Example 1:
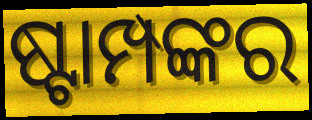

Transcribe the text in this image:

ଷ୍ଟାମ୍ପଙ୍କର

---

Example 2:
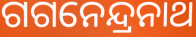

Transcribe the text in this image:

ଗଗନେନ୍ଦ୍ରନାଥ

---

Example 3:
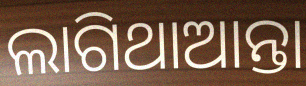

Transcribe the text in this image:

ଲାଗିଥାଆନ୍ତା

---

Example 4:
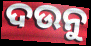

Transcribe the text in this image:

ଦଉନୁ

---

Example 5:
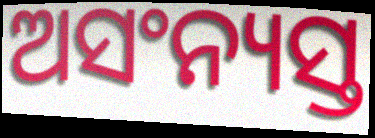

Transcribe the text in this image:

ଅସଂନ୍ୟସ୍ତ